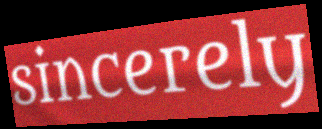
sincerely